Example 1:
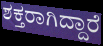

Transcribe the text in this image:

ಶಕ್ತರಾಗಿದ್ದಾರೆ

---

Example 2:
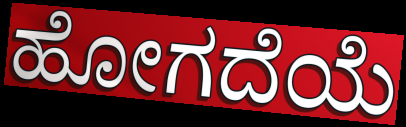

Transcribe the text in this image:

ಹೋಗದೆಯೆ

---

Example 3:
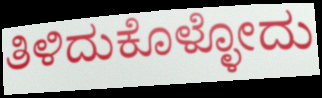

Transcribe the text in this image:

ತಿಳಿದುಕೊಳ್ಳೋದು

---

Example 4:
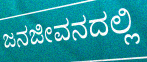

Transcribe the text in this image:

ಜನಜೀವನದಲ್ಲಿ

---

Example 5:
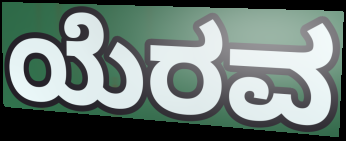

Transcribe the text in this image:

ಯೆರವ